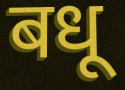
बधू